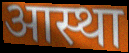
आस्‍था